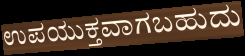
ಉಪಯುಕ್ತವಾಗಬಹುದು